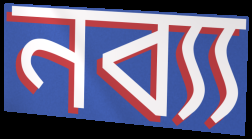
নব্য্য